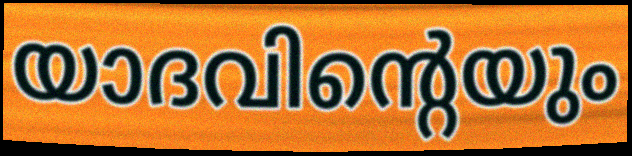
യാദവിന്റെയും